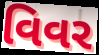
વિવર